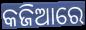
କଜିଆରେ